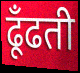
ढूँढती